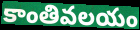
కాంతివలయం